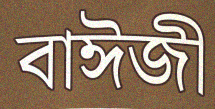
বাঈজী